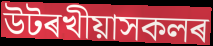
উটৰখীয়াসকলৰ